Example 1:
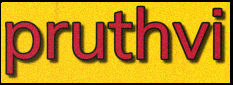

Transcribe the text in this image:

pruthvi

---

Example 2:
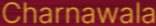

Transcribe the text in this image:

Charnawala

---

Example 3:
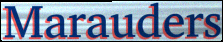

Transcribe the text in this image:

Marauders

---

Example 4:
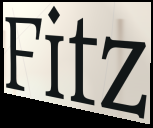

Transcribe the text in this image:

Fitz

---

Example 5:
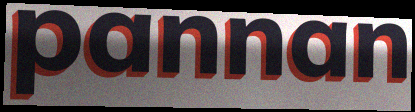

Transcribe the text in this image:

pannan